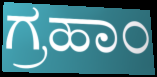
ಗ್ರಹಾಂ